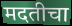
मदतीचा